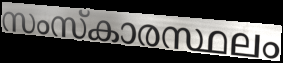
സംസ്കാരസ്ഥലം